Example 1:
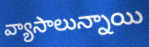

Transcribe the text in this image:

వ్యాసాలున్నాయి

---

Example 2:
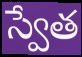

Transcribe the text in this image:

స్వేత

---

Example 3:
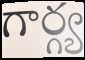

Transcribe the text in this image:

గార్గ్య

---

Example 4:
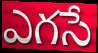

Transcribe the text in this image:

ఎగసే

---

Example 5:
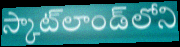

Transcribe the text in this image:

స్కాట్‌లాండ్‌లోని